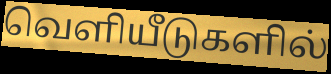
வெளியீடுகளில்